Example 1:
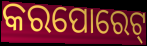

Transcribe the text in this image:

କରପୋରେଟ୍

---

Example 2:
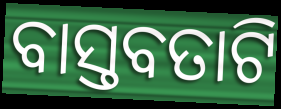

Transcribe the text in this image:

ବାସ୍ତବତାଟି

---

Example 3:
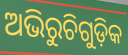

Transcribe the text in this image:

ଅଭିରୁଚିଗୁଡ଼ିକ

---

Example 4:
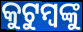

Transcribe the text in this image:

କୁଟୁମ୍ବଙ୍କୁ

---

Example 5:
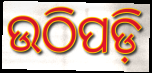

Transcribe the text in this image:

ଉଠିପଡ଼ି